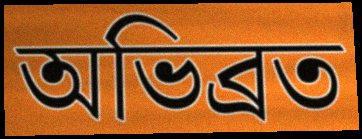
অভিব্রত